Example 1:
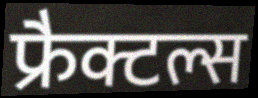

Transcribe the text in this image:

फ्रैक्टल्स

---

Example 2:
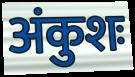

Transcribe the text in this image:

अंकुशः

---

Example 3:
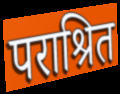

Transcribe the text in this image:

पराश्रित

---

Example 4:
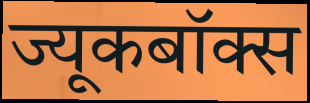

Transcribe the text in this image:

ज्यूकबॉक्स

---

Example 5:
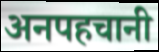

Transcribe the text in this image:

अनपहचानी